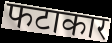
फटाकार